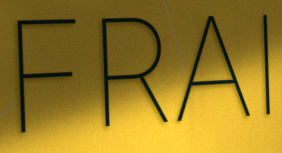
FRAI